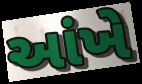
આંખે